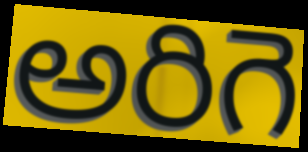
అరిగె